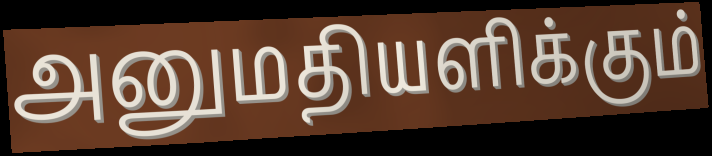
அனுமதியளிக்கும்